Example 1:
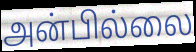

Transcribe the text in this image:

அன்பில்லை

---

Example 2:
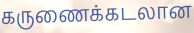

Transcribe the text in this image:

கருணைக்கடலான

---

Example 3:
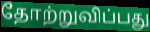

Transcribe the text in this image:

தோற்றுவிப்பது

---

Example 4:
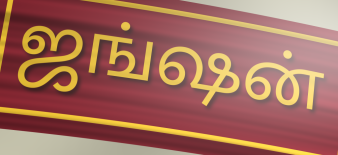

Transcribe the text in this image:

ஜங்ஷன்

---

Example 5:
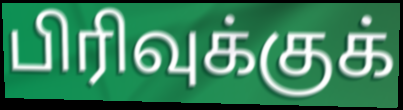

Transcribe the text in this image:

பிரிவுக்குக்